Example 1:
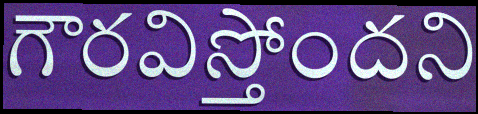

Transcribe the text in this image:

గౌరవిస్తోందని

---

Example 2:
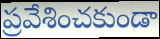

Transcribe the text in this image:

ప్రవేశించకుండా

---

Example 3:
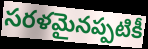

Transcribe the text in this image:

సరళమైనప్పటికీ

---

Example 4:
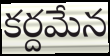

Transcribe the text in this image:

కర్దమేన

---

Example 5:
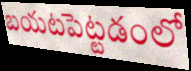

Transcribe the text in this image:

బయటపెట్టడంలో